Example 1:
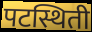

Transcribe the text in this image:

पटस्थिती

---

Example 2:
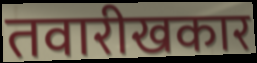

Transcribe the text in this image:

तवारीखकार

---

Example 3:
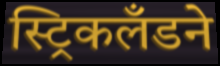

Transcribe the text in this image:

स्ट्रिकलँडने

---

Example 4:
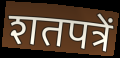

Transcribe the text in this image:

शतपत्रें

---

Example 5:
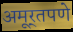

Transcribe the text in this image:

अमूर्तपणे